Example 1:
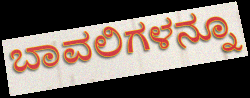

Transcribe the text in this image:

ಬಾವಲಿಗಳನ್ನೂ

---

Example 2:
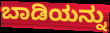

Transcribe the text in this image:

ಬಾಡಿಯನ್ನು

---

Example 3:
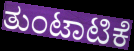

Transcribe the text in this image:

ತುಂಟಾಟಿಕೆ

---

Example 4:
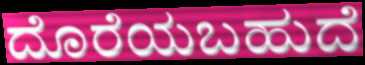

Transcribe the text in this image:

ದೊರೆಯಬಹುದೆ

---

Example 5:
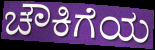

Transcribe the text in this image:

ಚೌಕಿಗೆಯ